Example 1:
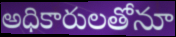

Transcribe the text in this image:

అధికారులతోనూ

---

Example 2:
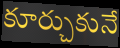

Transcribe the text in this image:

కూర్చుకునే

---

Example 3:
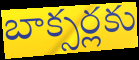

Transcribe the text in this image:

బాక్సర్లకు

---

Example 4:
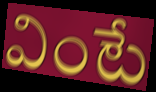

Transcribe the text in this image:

వింటే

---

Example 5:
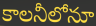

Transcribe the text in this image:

కాలనీలోనూ